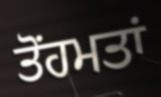
ਤੋਂਹਮਤਾਂ